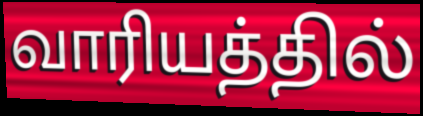
வாரியத்தில்